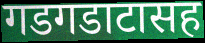
गडगडाटासह